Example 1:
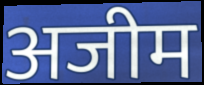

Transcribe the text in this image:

अजीम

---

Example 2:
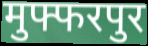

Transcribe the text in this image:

मुफ्फरपुर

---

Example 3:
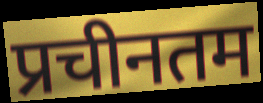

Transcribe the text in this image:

प्रचीनतम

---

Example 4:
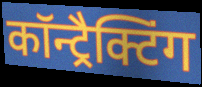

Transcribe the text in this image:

कॉन्ट्रैक्टिंग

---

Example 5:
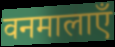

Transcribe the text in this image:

वनमालाएँ